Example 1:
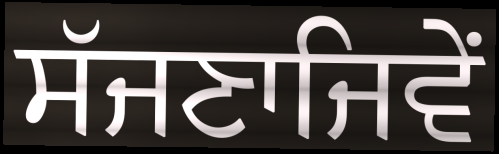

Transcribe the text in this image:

ਸੱਜਣਾਜਿਵੇਂ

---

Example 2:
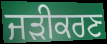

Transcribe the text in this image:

ਜੜੀਕਰਣ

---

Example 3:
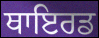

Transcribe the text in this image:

ਥਾਇਰਡ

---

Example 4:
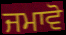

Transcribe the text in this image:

ਜਮਾਵੋ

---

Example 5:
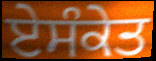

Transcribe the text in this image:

ਏਸੰਕੇਤ